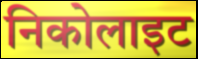
निकोलाइट